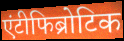
एंटीफिब्रोटिक